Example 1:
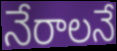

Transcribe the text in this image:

నేరాలనే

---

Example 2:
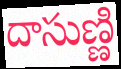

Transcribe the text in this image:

దాసుణ్ణి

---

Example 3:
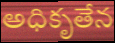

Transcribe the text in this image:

అధికృతేన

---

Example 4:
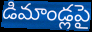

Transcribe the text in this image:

డిమాండ్లపై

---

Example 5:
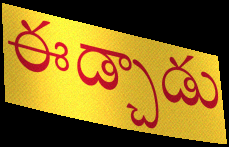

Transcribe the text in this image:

ఈడ్చాడు